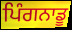
ਪਿੰਗਨਾਡੂ